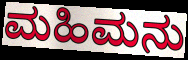
ಮಹಿಮನು